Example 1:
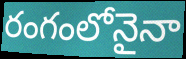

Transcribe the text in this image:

రంగంలోనైనా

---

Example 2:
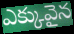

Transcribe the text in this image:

ఎక్కువైన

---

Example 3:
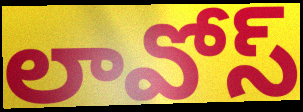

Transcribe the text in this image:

లావోస్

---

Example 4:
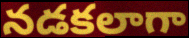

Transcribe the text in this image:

నడకలాగా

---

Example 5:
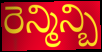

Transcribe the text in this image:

రెన్మిన్బి